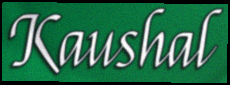
Kaushal